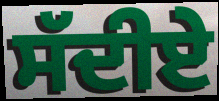
ਸੱਦੀਏ